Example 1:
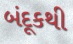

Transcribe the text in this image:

બંદૂકથી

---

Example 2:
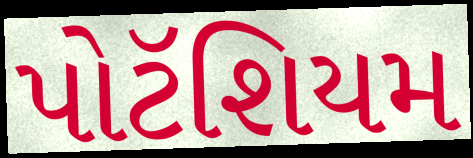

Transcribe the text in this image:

પોટૅશિયમ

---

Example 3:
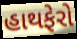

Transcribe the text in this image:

હાથફેરો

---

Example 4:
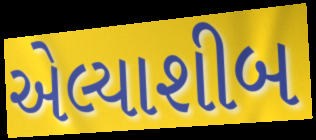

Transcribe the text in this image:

એલ્યાશીબ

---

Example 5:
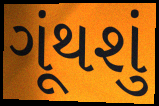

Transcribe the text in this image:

ગૂંથશું